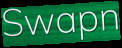
Swapn